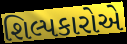
શિલ્પકારોએ